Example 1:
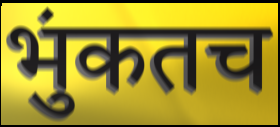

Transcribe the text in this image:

भुंकतच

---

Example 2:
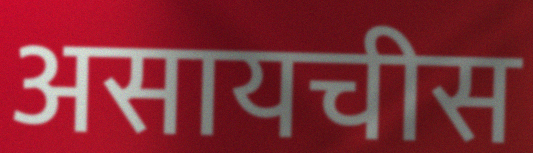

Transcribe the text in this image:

असायचीस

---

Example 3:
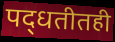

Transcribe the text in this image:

पद्धतीतही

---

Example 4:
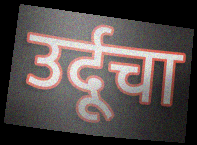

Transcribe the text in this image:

उर्दूचा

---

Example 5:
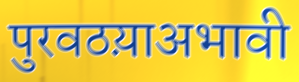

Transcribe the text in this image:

पुरवठय़ाअभावी